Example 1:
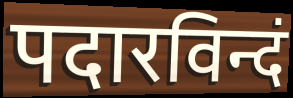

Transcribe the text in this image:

पदारविन्दं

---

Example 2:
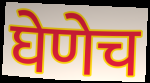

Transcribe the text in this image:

घेणेच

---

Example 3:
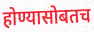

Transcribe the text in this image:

होण्यासोबतच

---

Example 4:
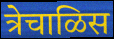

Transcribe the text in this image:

त्रेचाळिस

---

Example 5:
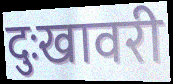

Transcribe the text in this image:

दुःखावरी